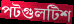
পটগুলটিশ